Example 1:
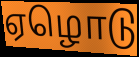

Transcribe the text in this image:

ஏழொடு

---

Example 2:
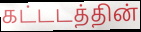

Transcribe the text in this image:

கட்டடத்தின்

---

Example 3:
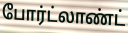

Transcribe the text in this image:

போர்ட்லாண்ட்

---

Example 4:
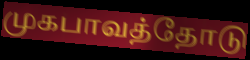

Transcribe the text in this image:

முகபாவத்தோடு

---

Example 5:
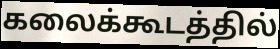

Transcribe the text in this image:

கலைக்கூடத்தில்